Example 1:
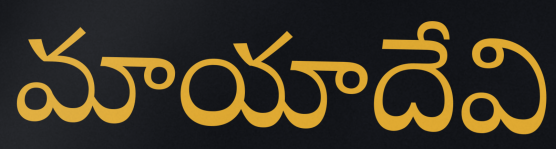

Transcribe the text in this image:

మాయాదేవి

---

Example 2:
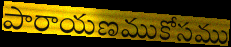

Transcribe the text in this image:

పారాయణముకోసము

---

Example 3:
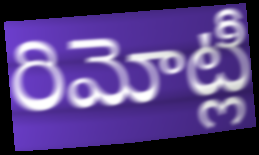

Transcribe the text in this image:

రిమోట్లీ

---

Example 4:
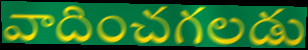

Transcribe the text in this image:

వాదించగలడు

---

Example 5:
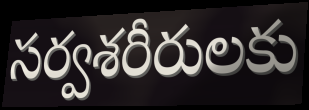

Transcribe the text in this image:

సర్వశరీరులకు